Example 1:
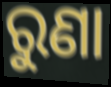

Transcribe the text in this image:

ରୁଣା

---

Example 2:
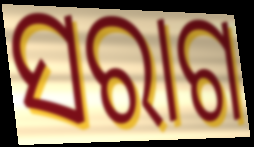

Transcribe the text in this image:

ସରାଗ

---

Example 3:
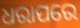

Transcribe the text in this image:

ଧରାପରେ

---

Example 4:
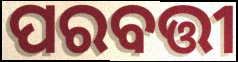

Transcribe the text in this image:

ପରବତ୍ତୀ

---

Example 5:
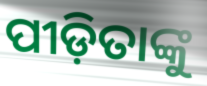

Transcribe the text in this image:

ପୀଡ଼ିତାଙ୍କୁ